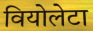
वियोलेटा